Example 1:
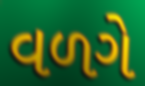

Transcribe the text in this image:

વળગે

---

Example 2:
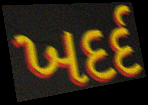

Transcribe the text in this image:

ખદર્દ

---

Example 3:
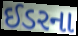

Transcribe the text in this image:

ઈડરના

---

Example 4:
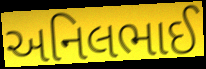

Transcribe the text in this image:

અનિલભાઈ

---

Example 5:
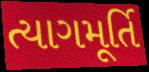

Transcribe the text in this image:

ત્યાગમૂર્તિ